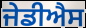
ਜੇਡੀਐਸ